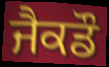
ਜੈਕਡੌ